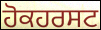
ਹੋਕਹਰਸਟ